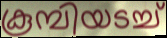
കൂമ്പിയടച്ച്